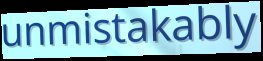
unmistakably